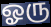
ஓரு